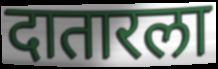
दातारला